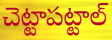
చెట్టాపట్టాల్